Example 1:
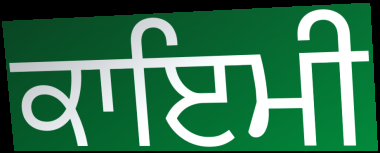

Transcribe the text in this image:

ਕਾਇਮੀ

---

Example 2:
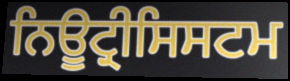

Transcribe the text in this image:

ਨਿਊਟ੍ਰੀਸਿਸਟਮ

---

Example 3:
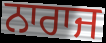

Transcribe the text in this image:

ਨਾਰਾਜ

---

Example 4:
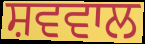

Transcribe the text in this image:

ਸ਼ਵਵਾਲ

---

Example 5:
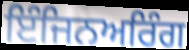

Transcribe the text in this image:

ਇੰਜਿਨਅਰਿੰਗ